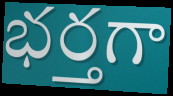
భర్తగా